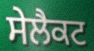
ਸੇਲੈਕਟ